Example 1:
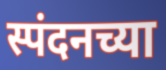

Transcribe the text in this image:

स्पंदनच्या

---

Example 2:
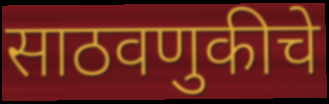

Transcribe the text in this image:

साठवणुकीचे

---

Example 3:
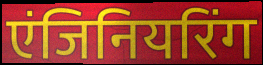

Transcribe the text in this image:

एंजिनियरिंग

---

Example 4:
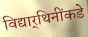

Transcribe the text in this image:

विद्यार्थिनींकडे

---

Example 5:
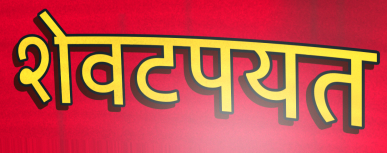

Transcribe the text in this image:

शेवटपयत